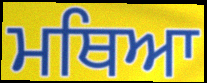
ਮਥਿਆ